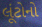
લૂંટોનો